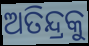
ଅତିନ୍ଦ୍ରକୁ